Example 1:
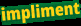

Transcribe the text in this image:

impliment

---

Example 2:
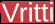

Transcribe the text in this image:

Vritti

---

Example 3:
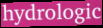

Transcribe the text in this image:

hydrologic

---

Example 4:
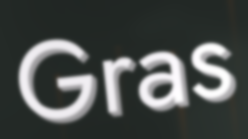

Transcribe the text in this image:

Gras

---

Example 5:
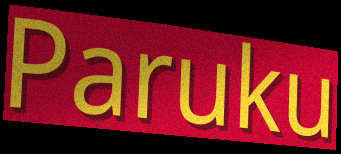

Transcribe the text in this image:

Paruku